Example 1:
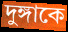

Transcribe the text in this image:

দুঙ্গাকে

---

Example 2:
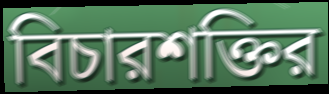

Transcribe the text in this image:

বিচারশক্তির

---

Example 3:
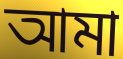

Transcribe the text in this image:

আমা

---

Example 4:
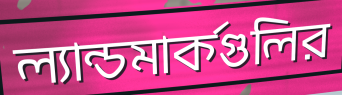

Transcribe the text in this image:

ল্যান্ডমার্কগুলির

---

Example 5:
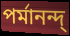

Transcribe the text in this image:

পর্মানন্দ্